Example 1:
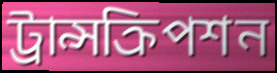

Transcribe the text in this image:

ট্রান্সক্রিপশন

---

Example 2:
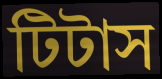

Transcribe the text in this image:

টিটাস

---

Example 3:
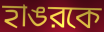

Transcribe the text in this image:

হাঙরকে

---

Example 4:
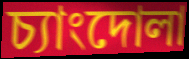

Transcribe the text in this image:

চ্যাংদোলা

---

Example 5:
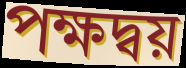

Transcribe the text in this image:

পক্ষদ্বয়